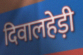
दिवालहेड़ी